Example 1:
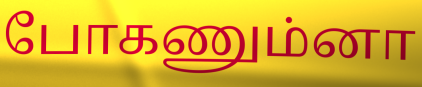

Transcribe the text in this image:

போகணும்னா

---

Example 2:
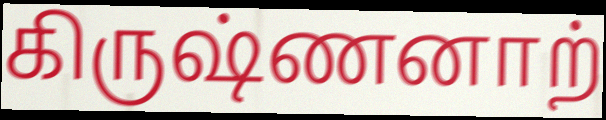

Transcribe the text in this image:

கிருஷ்ணனாற்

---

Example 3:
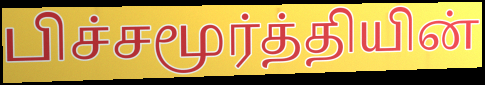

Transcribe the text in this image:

பிச்சமூர்த்தியின்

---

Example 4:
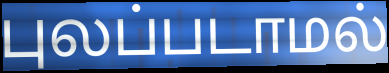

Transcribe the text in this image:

புலப்படாமல்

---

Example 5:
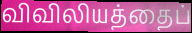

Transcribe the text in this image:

விவிலியத்தைப்